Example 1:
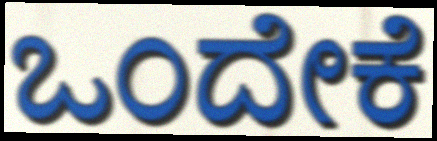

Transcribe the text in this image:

ಒಂದೇಕೆ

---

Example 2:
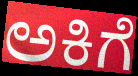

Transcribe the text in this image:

ಅಕಿಗೆ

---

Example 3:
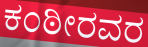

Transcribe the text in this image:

ಕಂಠೀರವರ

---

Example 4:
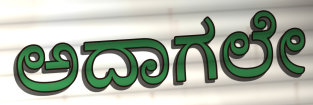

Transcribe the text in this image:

ಅದಾಗಲೇ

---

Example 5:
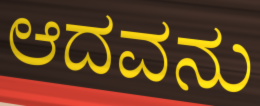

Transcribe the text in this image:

ಆದವನು